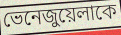
ভেনেজুয়েলাকে